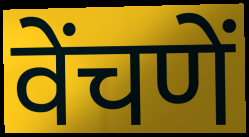
वेंचणें